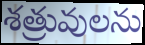
శత్రువులను